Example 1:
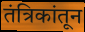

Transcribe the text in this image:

तंत्रिकांतून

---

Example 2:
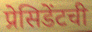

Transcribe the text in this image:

प्रेसिडेंटची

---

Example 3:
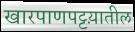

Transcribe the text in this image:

खारपाणपट्टय़ातील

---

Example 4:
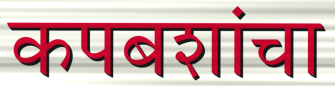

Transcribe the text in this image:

कपबशांचा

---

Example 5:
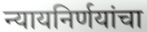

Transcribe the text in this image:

न्यायनिर्णयांचा